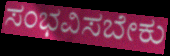
ಸಂಭವಿಸಬೇಕು